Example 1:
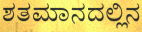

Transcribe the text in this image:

ಶತಮಾನದಲ್ಲಿನ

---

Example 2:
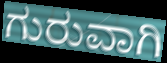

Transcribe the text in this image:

ಗುರುವಾಗಿ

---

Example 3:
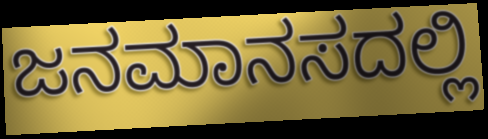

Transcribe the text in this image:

ಜನಮಾನಸದಲ್ಲಿ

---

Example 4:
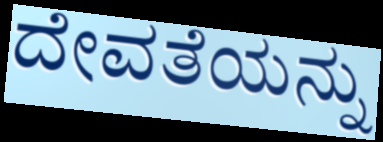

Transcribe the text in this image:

ದೇವತೆಯನ್ನು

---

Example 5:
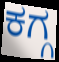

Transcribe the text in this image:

ಕಗ್ಗ